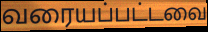
வரையப்பட்டவை